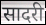
सादरी